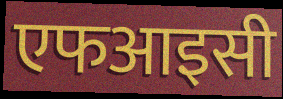
एफआइसी